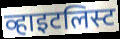
व्हाइटलिस्ट